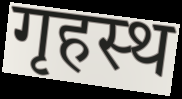
गृहस्थ